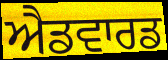
ਐਡਵਾਰਡ